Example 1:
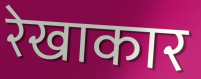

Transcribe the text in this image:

रेखाकार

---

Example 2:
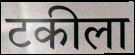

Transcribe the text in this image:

टकीला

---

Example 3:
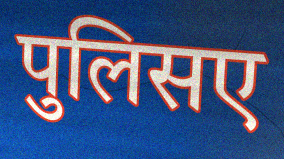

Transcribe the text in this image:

पुलिसए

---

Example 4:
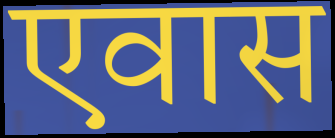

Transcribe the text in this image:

एवास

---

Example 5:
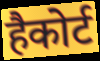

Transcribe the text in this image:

हैकोर्ट